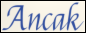
Ancak